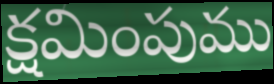
క్షమింపుము